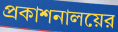
প্রকাশনালয়ের